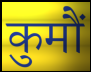
कुमौं